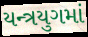
યન્ત્રયુગમાં